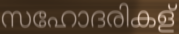
സഹോദരികള്